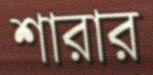
শারার